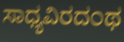
ಸಾಧ್ಯವಿರದಂಥ